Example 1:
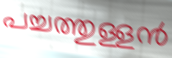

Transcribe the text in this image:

പച്ചത്തുള്ളൻ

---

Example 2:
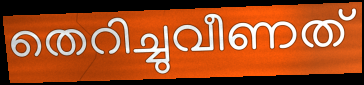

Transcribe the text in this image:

തെറിച്ചുവീണത്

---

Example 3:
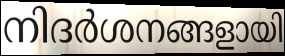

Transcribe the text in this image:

നിദർശനങ്ങളായി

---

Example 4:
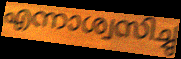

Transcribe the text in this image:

എന്നാശ്വസിച്ചു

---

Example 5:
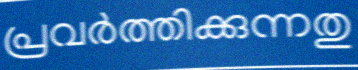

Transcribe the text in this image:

പ്രവർത്തിക്കുന്നതു